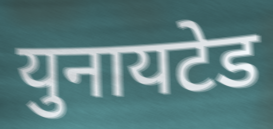
युनायटेड